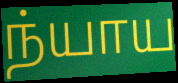
ந்யாய